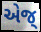
એજ્